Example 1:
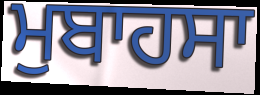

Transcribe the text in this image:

ਮੁਬਾਹਸਾ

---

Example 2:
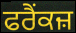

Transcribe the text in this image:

ਫਰੈਂਕਜ਼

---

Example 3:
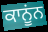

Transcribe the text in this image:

ਕਾਨੂਂਨ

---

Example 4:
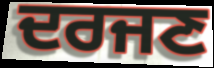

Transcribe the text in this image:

ਦਰਜਣ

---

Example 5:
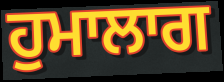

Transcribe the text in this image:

ਹੁਮਾਲਾਗ